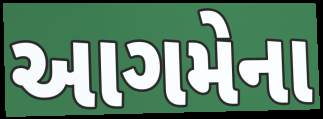
આગમેના